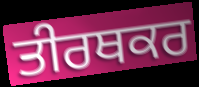
ਤੀਰਥਕਰ